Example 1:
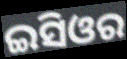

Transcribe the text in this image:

ଇସିଓର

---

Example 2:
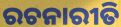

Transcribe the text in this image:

ରଚନାରୀତି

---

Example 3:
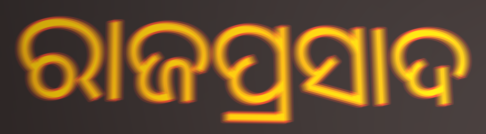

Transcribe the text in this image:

ରାଜପ୍ରସାଦ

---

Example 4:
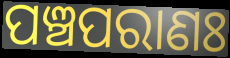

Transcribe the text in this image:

ପଞ୍ଚପରାଣଃ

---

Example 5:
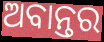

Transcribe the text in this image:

ଅବାନ୍ତର